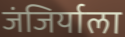
जंजिर्याला